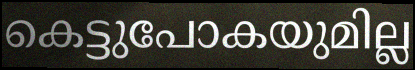
കെട്ടുപോകയുമില്ല